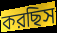
করছিস